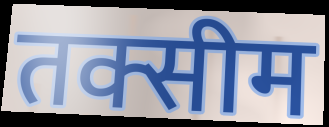
तक्सीम